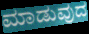
ಮಾಡುವುದ